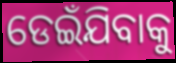
ଡେଇଁଯିବାକୁ